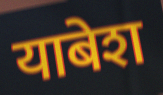
याबेश